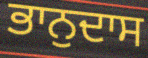
ਭਾਨੁਦਾਸ